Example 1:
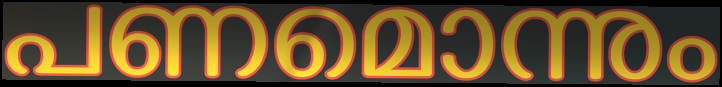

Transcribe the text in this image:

പണമൊന്നും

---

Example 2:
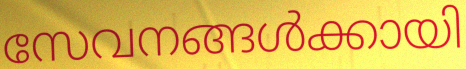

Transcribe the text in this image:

സേവനങ്ങൾക്കായി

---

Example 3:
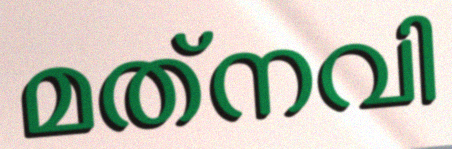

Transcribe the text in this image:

മത്‌നവി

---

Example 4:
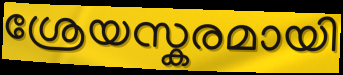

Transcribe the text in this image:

ശ്രേയസ്കരമായി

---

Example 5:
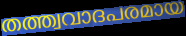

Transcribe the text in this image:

തത്ത്വവാദപരമായ